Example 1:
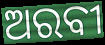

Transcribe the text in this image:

ଅରବୀ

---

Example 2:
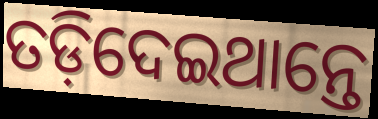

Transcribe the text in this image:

ତଡ଼ିଦେଇଥାନ୍ତେ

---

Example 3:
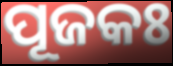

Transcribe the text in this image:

ପୂଜକଃ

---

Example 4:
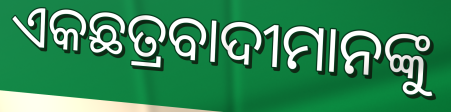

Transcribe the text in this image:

ଏକଛତ୍ରବାଦୀମାନଙ୍କୁ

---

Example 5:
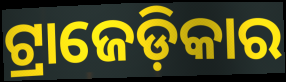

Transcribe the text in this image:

ଟ୍ରାଜେଡ଼ିକାର